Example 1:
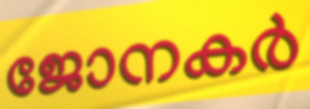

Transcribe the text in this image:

ജോനകർ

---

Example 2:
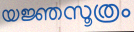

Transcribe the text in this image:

യജ്ഞസൂത്രം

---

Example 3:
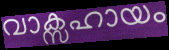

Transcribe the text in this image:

വാക്സഹായം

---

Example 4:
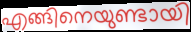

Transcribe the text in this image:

എങ്ങിനെയുണ്ടായി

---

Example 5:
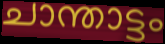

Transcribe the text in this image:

ചാന്താട്ടം